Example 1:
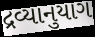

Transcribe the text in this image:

દ્રવ્યાનુયાગ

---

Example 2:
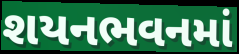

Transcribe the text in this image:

શયનભવનમાં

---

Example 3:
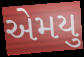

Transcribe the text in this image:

એમયુ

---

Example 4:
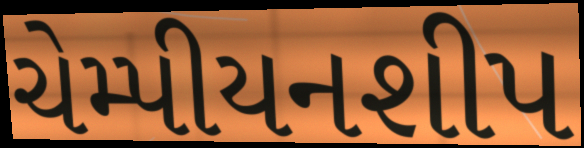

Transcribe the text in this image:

ચેમ્પીયનશીપ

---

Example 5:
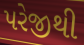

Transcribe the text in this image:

પરેજીથી